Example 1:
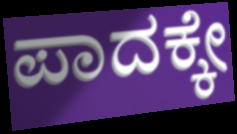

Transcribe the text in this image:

ಪಾದಕ್ಕೇ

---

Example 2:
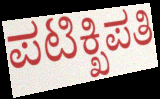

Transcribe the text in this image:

ಪಟಿಕ್ಖಿಪತಿ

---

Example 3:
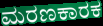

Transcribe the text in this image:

ಮರಣಕಾರಕ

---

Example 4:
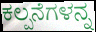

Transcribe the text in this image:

ಕಲ್ಪನೆಗಳನ್ನ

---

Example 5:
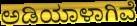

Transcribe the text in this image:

ಅಡಿಯಾಳಾಗಿವೆ